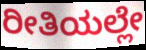
ರೀತಿಯಲ್ಲೇ